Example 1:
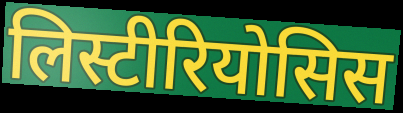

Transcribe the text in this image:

लिस्टीरियोसिस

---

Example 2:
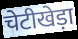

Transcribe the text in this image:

चेटीखेड़ा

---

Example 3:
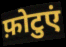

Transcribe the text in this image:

फ़ोटुएं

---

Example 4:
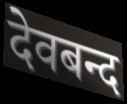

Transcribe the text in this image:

देवबन्द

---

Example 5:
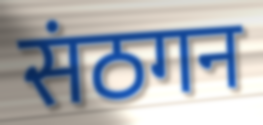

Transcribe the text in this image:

संठगन